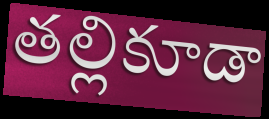
తల్లికూడా